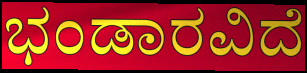
ಭಂಡಾರವಿದೆ